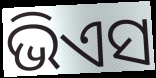
ଭିଏସ